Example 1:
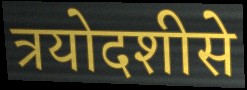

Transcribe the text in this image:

त्रयोदशीसे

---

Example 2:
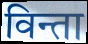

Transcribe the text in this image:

विन्ता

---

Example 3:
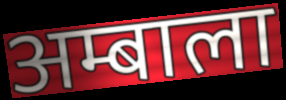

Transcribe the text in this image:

अम्बाला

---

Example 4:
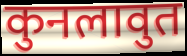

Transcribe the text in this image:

कुनलावुत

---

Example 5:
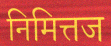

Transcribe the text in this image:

निमित्तज